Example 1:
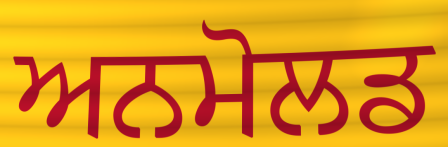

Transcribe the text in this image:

ਅਨਮੋਲਡ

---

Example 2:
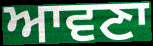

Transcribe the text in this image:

ਆਵਣਾ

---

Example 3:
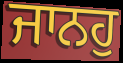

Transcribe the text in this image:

ਜਾਨਹੁ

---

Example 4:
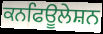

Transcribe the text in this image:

ਕਨਫਿਊਲੇਸ਼ਨ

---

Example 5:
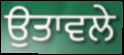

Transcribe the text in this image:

ਉਤਾਵਲੇ